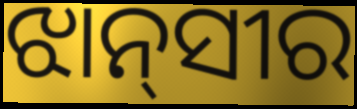
ଝାନ୍‌ସୀର